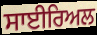
ਸਾਈਰਿਅਲ